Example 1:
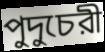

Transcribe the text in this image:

পুদুচেরী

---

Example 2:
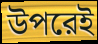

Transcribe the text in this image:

উপরেই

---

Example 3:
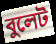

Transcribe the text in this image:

বুলেট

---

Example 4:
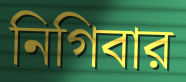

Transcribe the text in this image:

নিগিবার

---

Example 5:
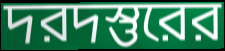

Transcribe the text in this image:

দরদস্তুরের